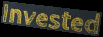
Invested